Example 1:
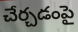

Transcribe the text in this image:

చేర్చడంపై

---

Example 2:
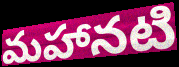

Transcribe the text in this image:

మహానటి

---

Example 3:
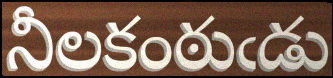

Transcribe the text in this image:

నీలకంఠుఁడు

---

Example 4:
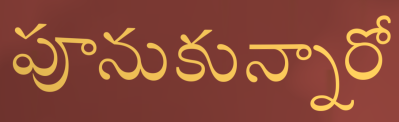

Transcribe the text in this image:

పూనుకున్నారో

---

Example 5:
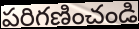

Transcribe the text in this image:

పరిగణించండి